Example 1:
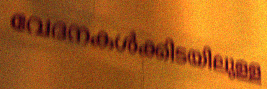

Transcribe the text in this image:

വേദനകൾക്കിടയിലുള്ള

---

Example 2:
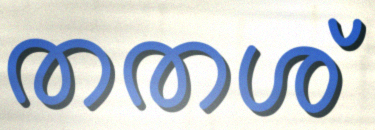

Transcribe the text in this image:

തതശ്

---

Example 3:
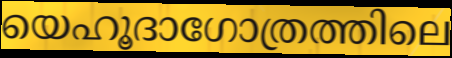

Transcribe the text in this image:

യെഹൂദാഗോത്രത്തിലെ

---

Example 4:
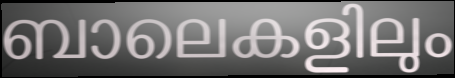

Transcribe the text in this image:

ബാലെകളിലും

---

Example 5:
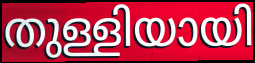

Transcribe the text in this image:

തുള്ളിയായി